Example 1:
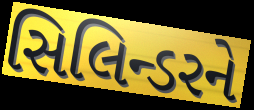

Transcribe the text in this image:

સિલિન્ડરને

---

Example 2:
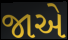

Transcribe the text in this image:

જાએ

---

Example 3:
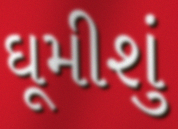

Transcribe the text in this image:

ઘૂમીશું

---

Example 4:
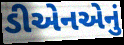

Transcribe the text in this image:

ડીએનએનું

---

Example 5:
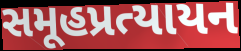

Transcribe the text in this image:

સમૂહપ્રત્યાયન